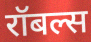
रॉबल्स